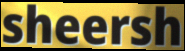
sheersh